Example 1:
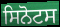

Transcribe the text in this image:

ਸਿਨੋਟਸ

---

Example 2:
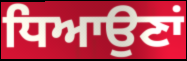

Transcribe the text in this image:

ਧਿਆਉਣਾਂ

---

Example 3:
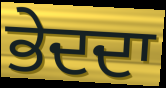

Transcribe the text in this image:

ਭੇਦਦਾ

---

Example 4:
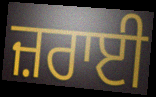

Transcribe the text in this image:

ਜ਼ਰਾਈ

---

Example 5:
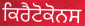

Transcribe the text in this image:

ਕਿਰੈਟੋਕੋਨਸ